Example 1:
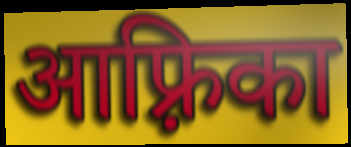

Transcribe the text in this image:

आफ़्रिका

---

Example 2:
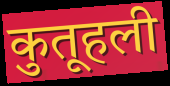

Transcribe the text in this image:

कुतूहली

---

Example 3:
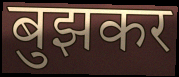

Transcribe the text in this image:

बुझकर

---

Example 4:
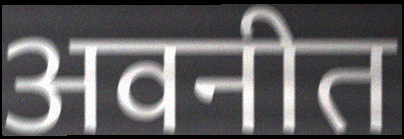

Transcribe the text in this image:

अवनीत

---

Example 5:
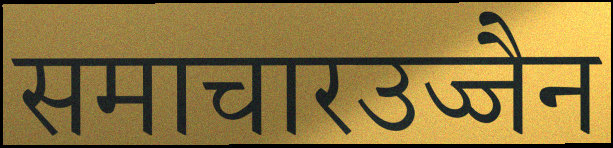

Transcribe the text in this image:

समाचारउज्जैन